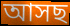
আসছ